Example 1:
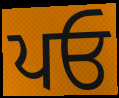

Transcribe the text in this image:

ਪਓ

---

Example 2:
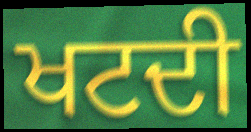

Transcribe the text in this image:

ਖਟਦੀ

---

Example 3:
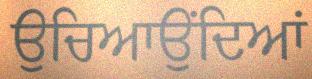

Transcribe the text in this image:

ਉਚਿਆਉਂਦਿਆਂ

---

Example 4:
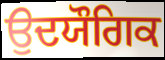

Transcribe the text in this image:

ਉਦਯੌਗਿਕ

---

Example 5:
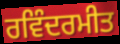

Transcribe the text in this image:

ਰਵਿੰਦਰਮੀਤ